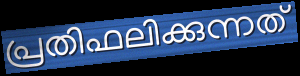
പ്രതിഫലിക്കുന്നത്